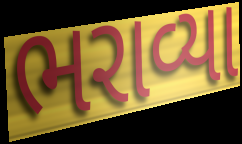
ભરાવ્યા